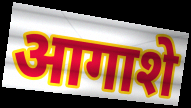
आगाशे